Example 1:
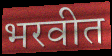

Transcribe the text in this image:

भरवीत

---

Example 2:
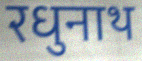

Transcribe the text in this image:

रधुनाथ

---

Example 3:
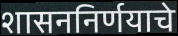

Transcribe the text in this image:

शासननिर्णयाचे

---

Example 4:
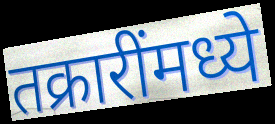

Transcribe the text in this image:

तक्रारींमध्ये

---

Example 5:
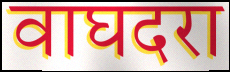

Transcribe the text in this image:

वाघदरा